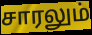
சாரலும்